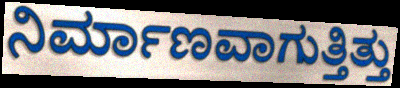
ನಿರ್ಮಾಣವಾಗುತ್ತಿತ್ತು